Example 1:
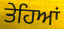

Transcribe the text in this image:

ਤੇਹਿਆਂ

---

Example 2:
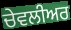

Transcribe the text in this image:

ਚੇਵਲੀਅਰ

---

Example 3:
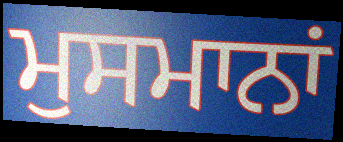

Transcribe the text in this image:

ਮੁਸਮਾਨਾਂ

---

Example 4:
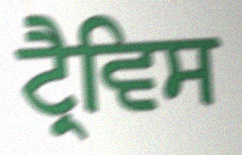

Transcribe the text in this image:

ਟ੍ਰੈਵਿਸ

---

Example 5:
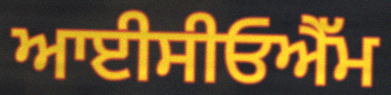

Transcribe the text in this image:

ਆਈਸੀਓਐੱਮ